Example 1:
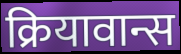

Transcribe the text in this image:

क्रियावान्स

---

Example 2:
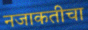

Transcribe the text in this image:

नजाकतीचा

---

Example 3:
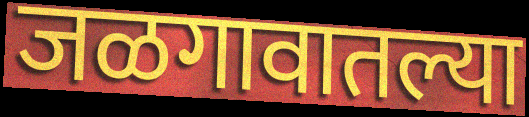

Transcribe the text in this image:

जळगावातल्या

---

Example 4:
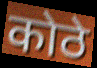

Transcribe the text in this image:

कोठे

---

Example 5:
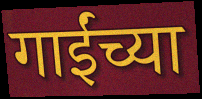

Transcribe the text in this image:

गाईंच्या